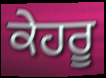
ਕੇਹਰੂ